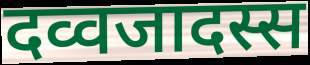
दव्वजादस्स